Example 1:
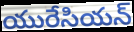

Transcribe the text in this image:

యురేసియన్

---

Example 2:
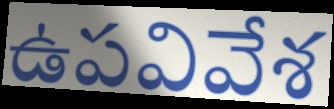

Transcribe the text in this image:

ఉపవివేశ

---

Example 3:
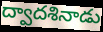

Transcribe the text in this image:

ద్వాదశినాడు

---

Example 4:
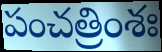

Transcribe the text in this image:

పంచత్రింశః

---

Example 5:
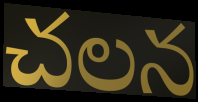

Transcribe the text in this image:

చలన